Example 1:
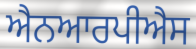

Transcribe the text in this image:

ਐਨਆਰਪੀਐਸ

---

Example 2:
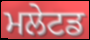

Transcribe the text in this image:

ਮਲੇਟਡ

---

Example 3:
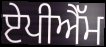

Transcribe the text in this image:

ਏਪੀਐੱਮ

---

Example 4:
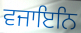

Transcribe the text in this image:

ਵਜਾਇਨਿ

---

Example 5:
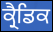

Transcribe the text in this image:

ਕ੍ਰੈਡਿਕ